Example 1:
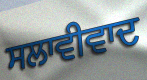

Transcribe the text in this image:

ਸਲਾਵੀਵਾਦ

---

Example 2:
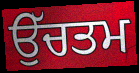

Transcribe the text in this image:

ਉੱਚਤਮ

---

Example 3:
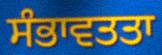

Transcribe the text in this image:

ਸੰਭਾਵਤਤਾ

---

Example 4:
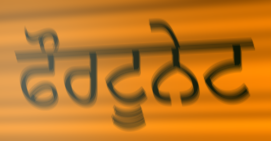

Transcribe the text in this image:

ਫੌਰਟੂਨੇਟ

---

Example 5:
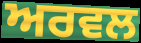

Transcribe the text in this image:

ਅਰਵਲ